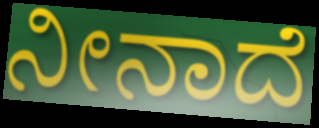
ನೀನಾದೆ